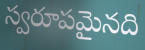
స్వరూపమైనది